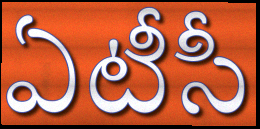
ఏటీసీ